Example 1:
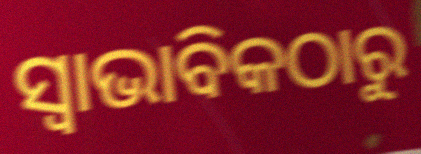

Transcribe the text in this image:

ସ୍ୱାଭାବିକଠାରୁ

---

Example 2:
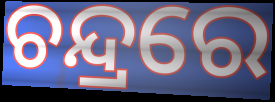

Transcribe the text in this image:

ଚନ୍ଦ୍ରରେ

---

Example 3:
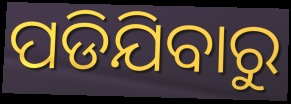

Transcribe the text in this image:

ପଡିଯିବାରୁ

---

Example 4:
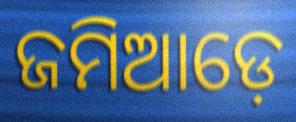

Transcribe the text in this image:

ଜମିଆଡ଼େ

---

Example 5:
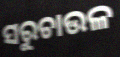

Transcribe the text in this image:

ସରୁଚାଉଳ